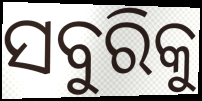
ସବୁରିକୁ